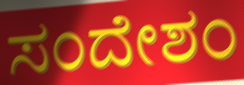
ಸಂದೇಶಂ